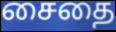
சைதை